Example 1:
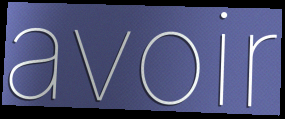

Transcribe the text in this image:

avoir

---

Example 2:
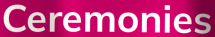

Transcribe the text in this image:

Ceremonies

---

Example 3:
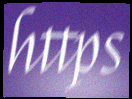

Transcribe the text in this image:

https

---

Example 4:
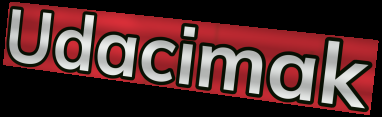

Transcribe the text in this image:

Udacimak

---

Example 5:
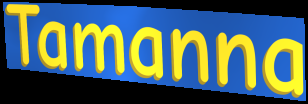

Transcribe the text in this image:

Tamanna